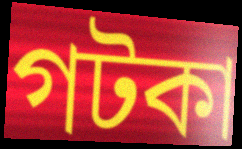
গটকা